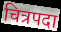
चित्रपदा